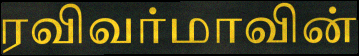
ரவிவர்மாவின்